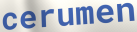
cerumen